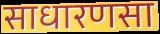
साधारणसा